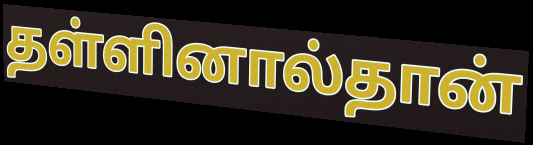
தள்ளினால்தான்